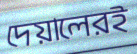
দেয়ালেরই